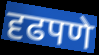
दृढपणे